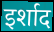
इर्शाद